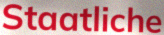
Staatliche